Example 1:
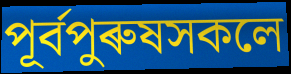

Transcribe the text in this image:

পূৰ্বপুৰুষসকলে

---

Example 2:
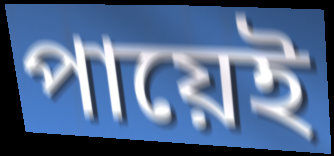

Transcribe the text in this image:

পায়েই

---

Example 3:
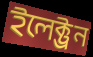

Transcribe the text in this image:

ইলেক্ট্ৰন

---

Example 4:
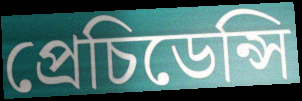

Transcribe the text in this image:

প্ৰেচিডেন্সি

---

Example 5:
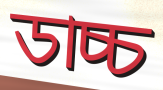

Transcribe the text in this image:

ডাচ্চ